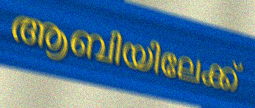
ആബിയിലേക്ക്